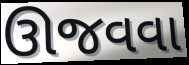
ઊજવવા